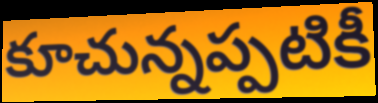
కూచున్నప్పటికీ